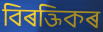
বিৰক্তিকৰ